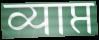
व्याप्त